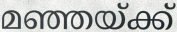
മഞ്ഞയ്ക്ക്